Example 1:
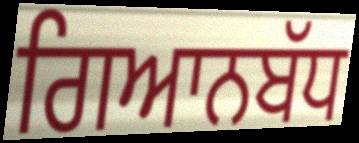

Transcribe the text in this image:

ਗਿਆਨਬੱਧ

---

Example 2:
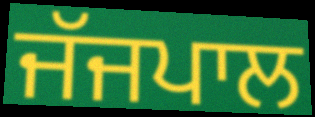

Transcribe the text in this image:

ਜੱਜਪਾਲ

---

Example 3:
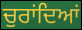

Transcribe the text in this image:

ਚੁਰਾਂਦਿਆਂ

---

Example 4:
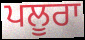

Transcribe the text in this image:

ਪਲੂਰਾ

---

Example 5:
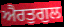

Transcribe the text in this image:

ਐਰਤੁਗੁਲ